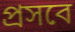
প্রসবে